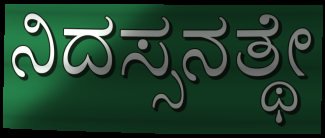
ನಿದಸ್ಸನತ್ಥೇ